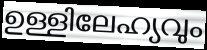
ഉള്ളിലേഹ്യവും